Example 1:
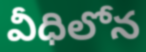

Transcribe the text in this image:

వీధిలోన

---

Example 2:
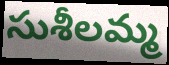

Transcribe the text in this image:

సుశీలమ్మ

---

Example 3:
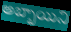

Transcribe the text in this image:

అబ్బాయిని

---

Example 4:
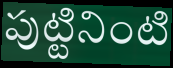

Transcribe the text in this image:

పుట్టినింటి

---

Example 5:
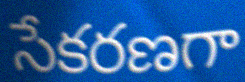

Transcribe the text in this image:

సేకరణగా